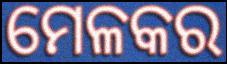
ମେଳକର